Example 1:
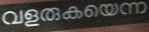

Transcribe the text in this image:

വളരുകയെന്ന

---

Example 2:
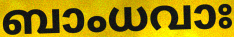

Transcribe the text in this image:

ബാംധവാഃ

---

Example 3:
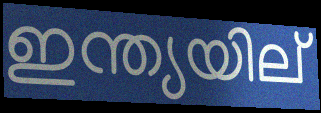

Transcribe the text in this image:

ഇന്ത്യയില്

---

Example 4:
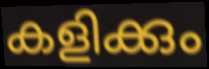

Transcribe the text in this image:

കളിക്കും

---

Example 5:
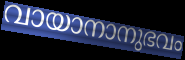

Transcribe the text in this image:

വായാനാനുഭവം